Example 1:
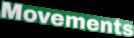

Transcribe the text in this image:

Movements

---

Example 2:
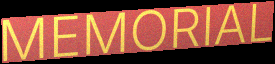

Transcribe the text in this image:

MEMORIAL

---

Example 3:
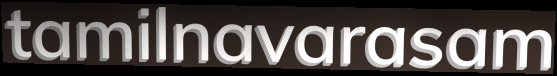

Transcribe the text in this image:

tamilnavarasam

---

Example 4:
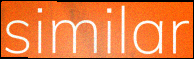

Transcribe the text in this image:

similar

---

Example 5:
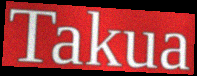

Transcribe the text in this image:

Takua